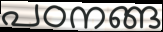
പഠനങ്ങ